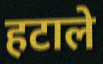
हटाले